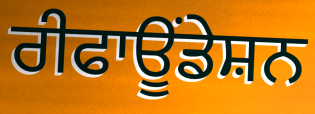
ਰੀਫਾਊਂਡੇਸ਼ਨ